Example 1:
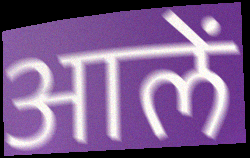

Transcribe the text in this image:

आलें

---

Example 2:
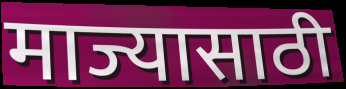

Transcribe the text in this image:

माज्यासाठी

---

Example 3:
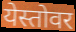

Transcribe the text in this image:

येस्तोवर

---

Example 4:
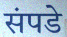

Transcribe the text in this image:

संपडे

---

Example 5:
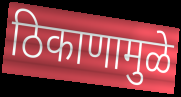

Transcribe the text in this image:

ठिकाणामुळे